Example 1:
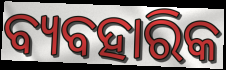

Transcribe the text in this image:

ବ୍ଯବହାରିକ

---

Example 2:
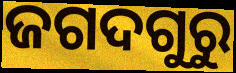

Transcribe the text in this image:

ଜଗଦଗୁରୁ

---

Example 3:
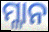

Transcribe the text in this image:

ମ୍ଳାନ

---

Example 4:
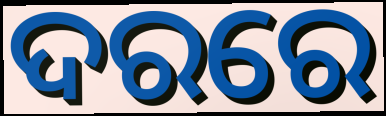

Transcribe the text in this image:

ଦରରେ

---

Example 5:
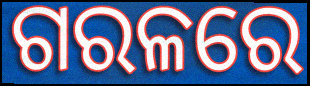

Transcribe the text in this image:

ଗରଳରେ